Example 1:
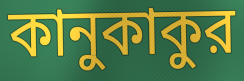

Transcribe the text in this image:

কানুকাকুর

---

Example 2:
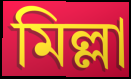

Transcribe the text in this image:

মিল্লা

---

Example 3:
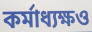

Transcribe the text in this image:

কর্মাধ্যক্ষও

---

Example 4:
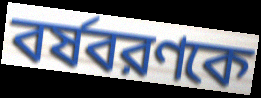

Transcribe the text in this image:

বর্ষবরণকে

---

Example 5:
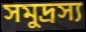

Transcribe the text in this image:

সমুদ্রস্য